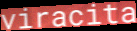
viracita